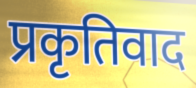
प्रकृतिवाद